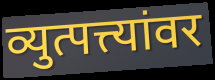
व्युत्पत्त्यांवर